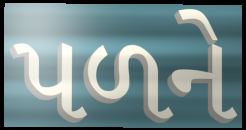
પળને